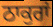
ਠਾਕੁਰਾਂ